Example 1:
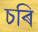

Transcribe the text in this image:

চৰি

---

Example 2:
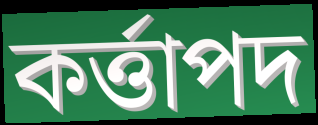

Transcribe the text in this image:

কৰ্ত্তাপদ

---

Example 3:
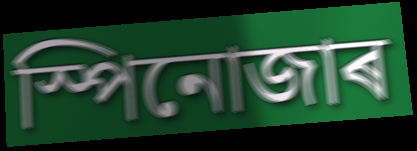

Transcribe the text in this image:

স্পিনোজাৰ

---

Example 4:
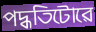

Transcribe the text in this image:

পদ্ধতিটোৱে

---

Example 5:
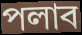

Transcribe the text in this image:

পলাব